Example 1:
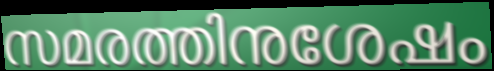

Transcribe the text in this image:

സമരത്തിനുശേഷം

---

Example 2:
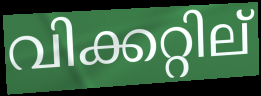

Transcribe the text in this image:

വിക്കറ്റില്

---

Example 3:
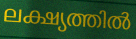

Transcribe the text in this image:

ലക്ഷ്യത്തിൽ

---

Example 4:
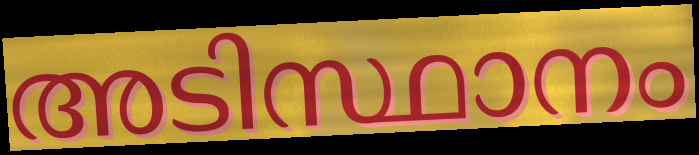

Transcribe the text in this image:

അടിസ്ഥാനം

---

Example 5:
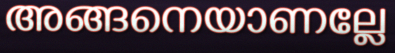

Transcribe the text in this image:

അങ്ങനെയാണല്ലേ